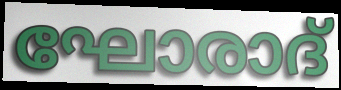
ഘോരാദ്